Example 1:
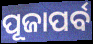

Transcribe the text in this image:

ପୂଜାପର୍ବ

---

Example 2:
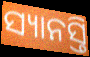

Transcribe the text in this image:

ସ୍ୟାନସ୍ତି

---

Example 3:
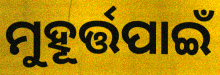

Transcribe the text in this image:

ମୁହୂର୍ତ୍ତପାଇଁ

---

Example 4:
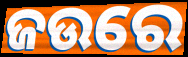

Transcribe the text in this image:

ଜଉରେ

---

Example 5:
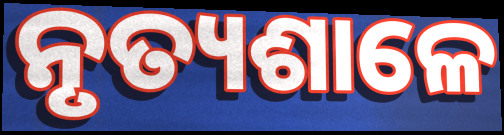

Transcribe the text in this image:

ନୃତ୍ୟଶାଳେ